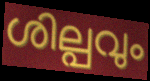
ശില്പവും